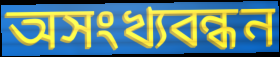
অসংখ্যবন্ধন